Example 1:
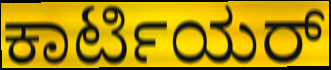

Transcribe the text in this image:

ಕಾರ್ಟಿಯರ್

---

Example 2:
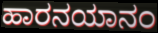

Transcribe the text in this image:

ಹಾರನಯಾನಂ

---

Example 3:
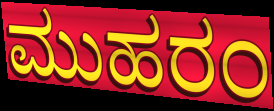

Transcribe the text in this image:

ಮುಹರಂ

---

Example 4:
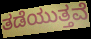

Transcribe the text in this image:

ತಡೆಯುತ್ತವೆ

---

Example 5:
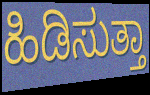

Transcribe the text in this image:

ಹಿಡಿಸುತ್ತಾ